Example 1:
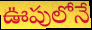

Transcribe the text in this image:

ఊపులోనే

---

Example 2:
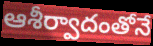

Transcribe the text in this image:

ఆశీర్వాదంతోనే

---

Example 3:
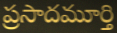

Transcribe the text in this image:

ప్రసాదమూర్తి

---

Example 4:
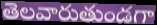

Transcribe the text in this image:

తెలవారుతుండగా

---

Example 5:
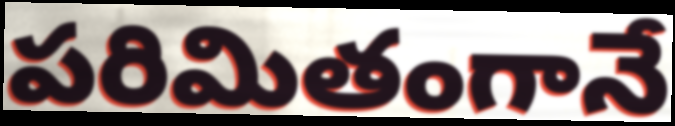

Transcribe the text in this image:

పరిమితంగానే